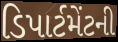
ડિપાર્ટમેંટની